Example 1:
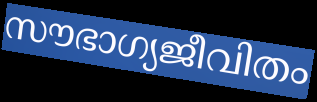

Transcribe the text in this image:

സൗഭാഗ്യജീവിതം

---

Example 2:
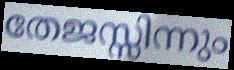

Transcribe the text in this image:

തേജസ്സിന്നും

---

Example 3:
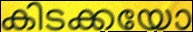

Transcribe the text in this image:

കിടക്കയോ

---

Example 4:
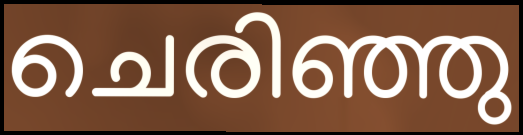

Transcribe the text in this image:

ചെരിഞ്ഞു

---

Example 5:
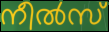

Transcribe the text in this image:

നീൽസ്